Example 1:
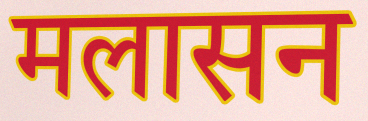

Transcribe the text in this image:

मलासन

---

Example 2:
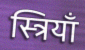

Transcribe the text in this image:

स्त्रियाँ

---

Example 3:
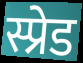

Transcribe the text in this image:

स्‍प्रेड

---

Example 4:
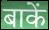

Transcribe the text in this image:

बाकें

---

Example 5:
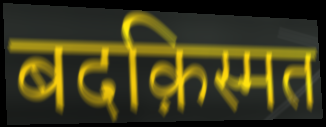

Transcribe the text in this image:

बदक़िस्मत